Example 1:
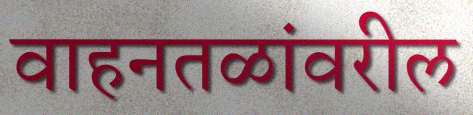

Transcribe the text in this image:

वाहनतळांवरील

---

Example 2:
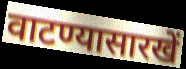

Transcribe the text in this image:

वाटण्यासारखें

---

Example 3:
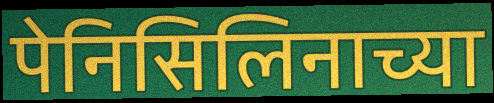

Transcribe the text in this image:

पेनिसिलिनाच्या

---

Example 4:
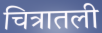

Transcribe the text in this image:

चित्रातली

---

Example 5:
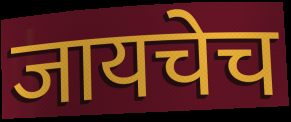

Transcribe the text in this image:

जायचेच